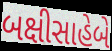
બક્ષીસાહેબે